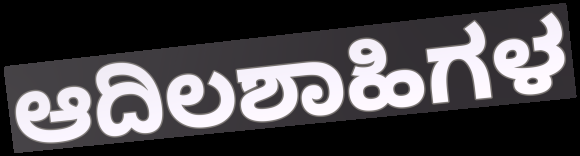
ಆದಿಲಶಾಹಿಗಳ